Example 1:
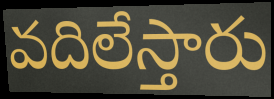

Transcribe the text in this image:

వదిలేస్తారు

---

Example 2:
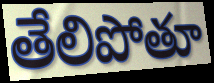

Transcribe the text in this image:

తేలిపోతూ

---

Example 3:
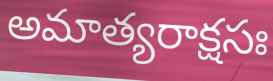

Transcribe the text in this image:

అమాత్యరాక్షసః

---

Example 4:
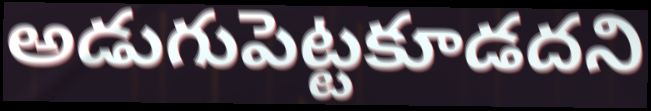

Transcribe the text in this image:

అడుగుపెట్టకూడదని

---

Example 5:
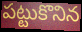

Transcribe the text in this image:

పట్టుకొనిన